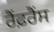
ਰੈਂਫ਼ਰੈਂਸ